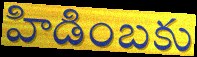
హిడింబకు